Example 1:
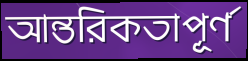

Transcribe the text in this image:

আন্তরিকতাপূর্ণ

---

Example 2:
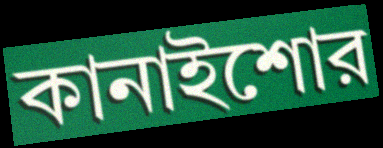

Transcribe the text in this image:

কানাইশোর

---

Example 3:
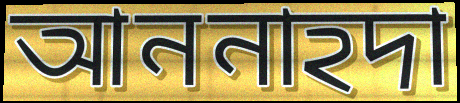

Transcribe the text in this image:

আননাহদা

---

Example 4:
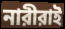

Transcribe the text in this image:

নারীরাই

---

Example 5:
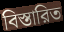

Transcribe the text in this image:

বিস্তারিত